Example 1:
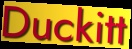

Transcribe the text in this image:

Duckitt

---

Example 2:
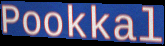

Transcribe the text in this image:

Pookkal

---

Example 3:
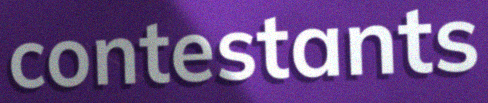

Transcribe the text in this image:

contestants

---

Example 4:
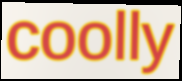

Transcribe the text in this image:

coolly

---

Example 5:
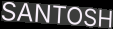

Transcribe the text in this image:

SANTOSH